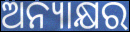
ଅନ୍ୟାକ୍ଷର